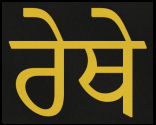
ਰੇਥੇ